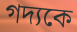
গদ্যকে